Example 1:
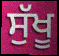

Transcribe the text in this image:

ਸੁੱਖੂ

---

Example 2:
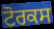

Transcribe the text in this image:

ਟੋਰਕਸ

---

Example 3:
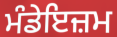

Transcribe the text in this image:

ਮੰਡੇਇਜ਼ਮ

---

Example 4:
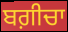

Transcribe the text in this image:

ਬਗ਼ੀਚਾ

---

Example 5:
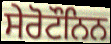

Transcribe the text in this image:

ਸੇਰੋਟੌਨਿਨ